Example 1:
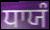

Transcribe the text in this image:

ਧਾਯੰ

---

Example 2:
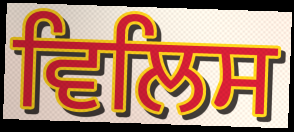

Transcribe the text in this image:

ਵਿਲਿਸ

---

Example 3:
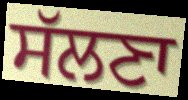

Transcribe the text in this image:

ਸੱਲਣਾ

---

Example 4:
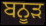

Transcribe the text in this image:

ਬਨੂੜ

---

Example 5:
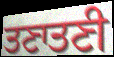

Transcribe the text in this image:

ਤਣਾਤਣੀ